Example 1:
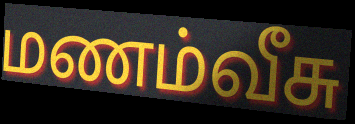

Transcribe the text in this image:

மணம்வீசு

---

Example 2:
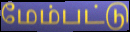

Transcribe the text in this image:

மேம்பட்டு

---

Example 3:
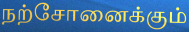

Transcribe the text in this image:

நற்சோனைக்கும்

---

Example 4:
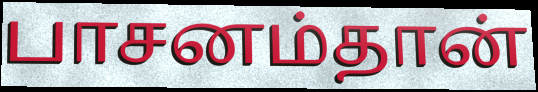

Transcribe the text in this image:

பாசனம்தான்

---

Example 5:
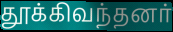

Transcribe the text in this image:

தூக்கிவந்தனர்